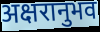
अक्षरानुभव